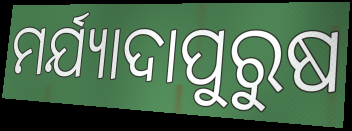
ମର୍ଯ୍ୟାଦାପୁରୁଷ